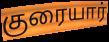
குரையார்